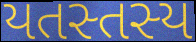
યતસ્તસ્ય